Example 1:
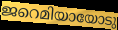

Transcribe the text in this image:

ജറെമിയായോടു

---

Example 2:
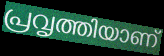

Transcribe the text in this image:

പ്രവൃത്തിയാണ്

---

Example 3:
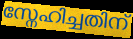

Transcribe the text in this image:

സ്നേഹിച്ചതിന്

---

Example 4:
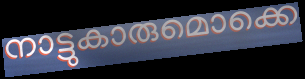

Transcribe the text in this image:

നാട്ടുകാരുമൊക്കെ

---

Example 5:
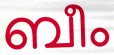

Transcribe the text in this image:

ബീം